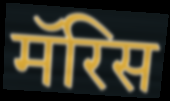
मॅरिस